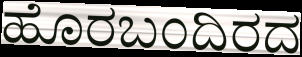
ಹೊರಬಂದಿರದ